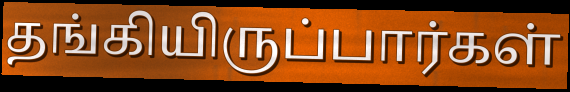
தங்கியிருப்பார்கள்